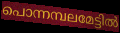
പൊന്നമ്പലമേട്ടിൽ